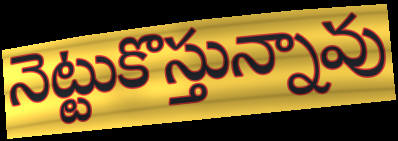
నెట్టుకొస్తున్నావు